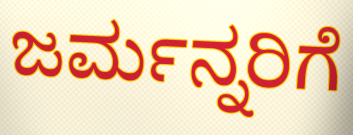
ಜರ್ಮನ್ನರಿಗೆ